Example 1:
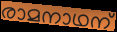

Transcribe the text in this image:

രാമനാഥന്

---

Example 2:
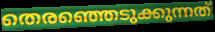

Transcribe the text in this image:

തെരഞ്ഞെടുക്കുന്നത്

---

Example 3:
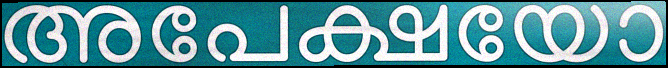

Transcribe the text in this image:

അപേക്ഷയോ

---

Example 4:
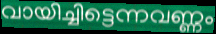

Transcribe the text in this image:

വായിച്ചിട്ടെന്നവണ്ണം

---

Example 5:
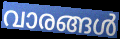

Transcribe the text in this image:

വാരങ്ങൾ